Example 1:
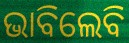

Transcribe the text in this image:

ଭାବିଲେବି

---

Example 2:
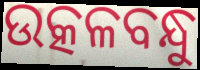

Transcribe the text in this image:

ଉତ୍କଳବନ୍ଧୁ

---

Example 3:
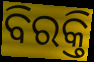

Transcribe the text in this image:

ବିରକ୍ତି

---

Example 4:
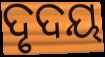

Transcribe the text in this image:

ଦୃଦୟ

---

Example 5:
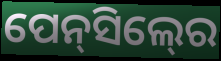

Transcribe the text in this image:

ପେନ୍‍ସିଲ୍‍ରେ